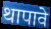
थापावे